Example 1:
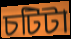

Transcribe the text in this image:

চটিটা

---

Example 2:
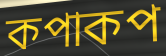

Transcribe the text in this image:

কপাকপ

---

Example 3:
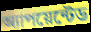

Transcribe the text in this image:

অ্যাপয়েন্টেড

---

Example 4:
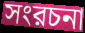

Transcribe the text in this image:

সংরচনা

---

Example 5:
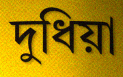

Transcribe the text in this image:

দুধিয়া